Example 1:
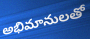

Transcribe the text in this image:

అభిమానులతో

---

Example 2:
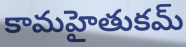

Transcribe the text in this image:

కామహైతుకమ్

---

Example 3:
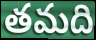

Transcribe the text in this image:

తమది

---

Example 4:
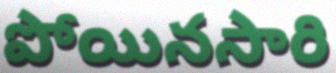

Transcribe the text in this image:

పోయినసారి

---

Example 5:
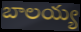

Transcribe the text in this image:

బాలయ్య